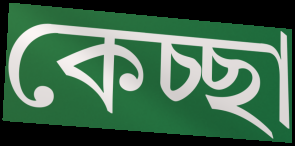
কেচ্ছা